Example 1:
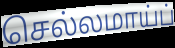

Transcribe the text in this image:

செல்லமாய்ப்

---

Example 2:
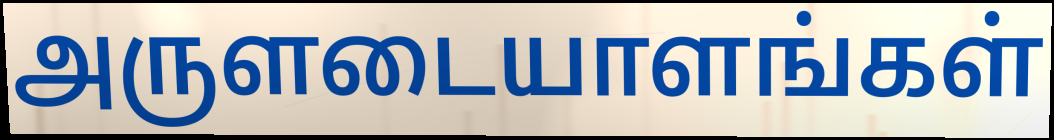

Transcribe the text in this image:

அருளடையாளங்கள்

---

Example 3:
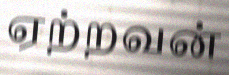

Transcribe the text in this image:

ஏற்றவன்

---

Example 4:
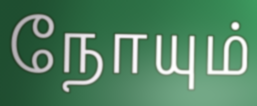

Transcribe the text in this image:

நோயும்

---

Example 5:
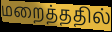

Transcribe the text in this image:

மறைத்ததில்